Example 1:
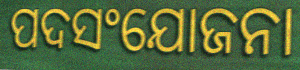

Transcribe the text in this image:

ପଦସଂଯୋଜନା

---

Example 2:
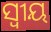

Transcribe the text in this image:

ସ୍ୱୀୟ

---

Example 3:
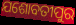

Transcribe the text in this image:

ଯଶୋବତୀପୁର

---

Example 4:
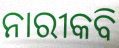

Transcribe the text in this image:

ନାରୀକବି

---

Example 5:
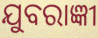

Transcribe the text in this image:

ଯୁବରାଜ୍ଞୀ